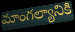
మాంగల్యానికి